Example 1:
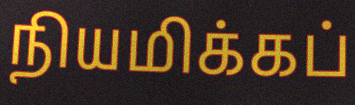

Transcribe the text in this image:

நியமிக்கப்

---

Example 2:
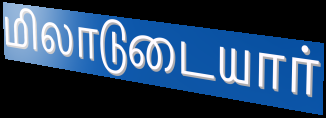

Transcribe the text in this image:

மிலாடுடையார்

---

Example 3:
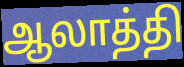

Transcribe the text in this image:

ஆலாத்தி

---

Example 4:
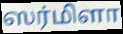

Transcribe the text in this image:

ஸர்மிளா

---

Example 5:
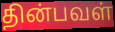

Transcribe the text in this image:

தின்பவள்